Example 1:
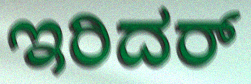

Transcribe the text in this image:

ಇರಿದರ್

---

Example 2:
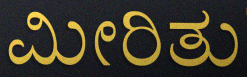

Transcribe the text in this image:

ಮೀರಿತು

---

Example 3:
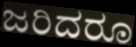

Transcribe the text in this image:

ಜರಿದರೂ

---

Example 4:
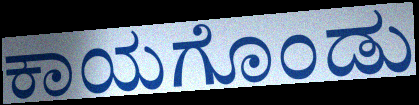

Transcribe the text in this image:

ಕಾಯಗೊಂಡು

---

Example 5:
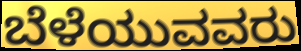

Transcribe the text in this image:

ಬೆಳೆಯುವವರು